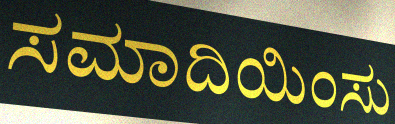
ಸಮಾದಿಯಿಂಸು